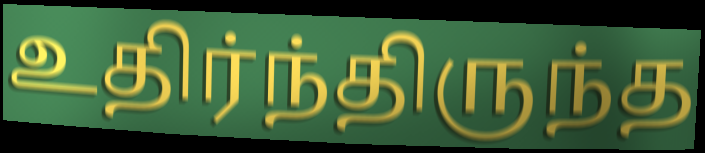
உதிர்ந்திருந்த